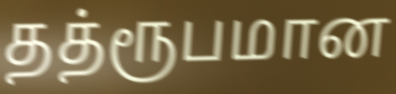
தத்ரூபமான